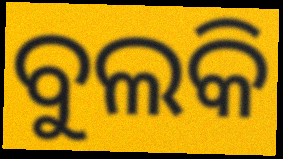
ବୁଲକି